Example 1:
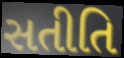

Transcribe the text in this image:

સતીતિ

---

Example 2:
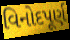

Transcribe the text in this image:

વિનોદપૂર્ણ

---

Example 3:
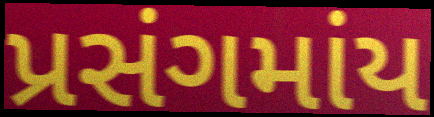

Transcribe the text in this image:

પ્રસંગમાંય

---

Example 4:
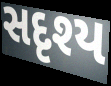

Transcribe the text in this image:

સદૃશ્ય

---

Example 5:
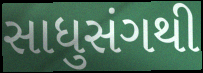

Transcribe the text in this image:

સાધુસંગથી